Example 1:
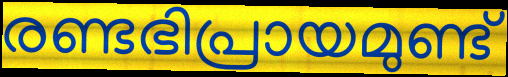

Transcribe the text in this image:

രണ്ടഭിപ്രായമുണ്ട്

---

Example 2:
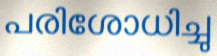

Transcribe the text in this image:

പരിശോധിച്ചു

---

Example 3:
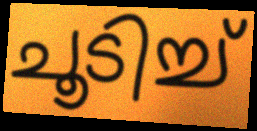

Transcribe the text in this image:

ചൂടിച്ച്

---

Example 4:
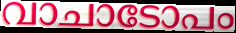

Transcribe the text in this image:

വാചാടോപം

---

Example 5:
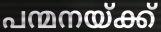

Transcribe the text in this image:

പന്മനയ്ക്ക്